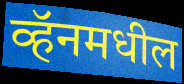
व्हॅनमधील